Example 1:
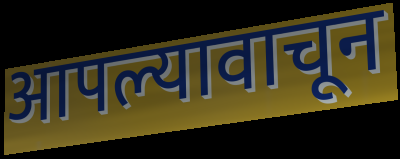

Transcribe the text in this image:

आपल्यावाचून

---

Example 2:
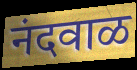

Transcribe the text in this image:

नंदवाळ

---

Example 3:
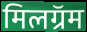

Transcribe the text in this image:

मिलग्रॅम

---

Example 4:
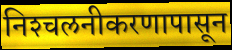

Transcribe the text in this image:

निश्चलनीकरणापासून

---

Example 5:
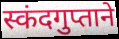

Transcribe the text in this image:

स्कंदगुप्ताने